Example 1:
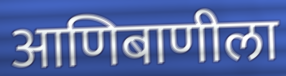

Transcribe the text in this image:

आणिबाणीला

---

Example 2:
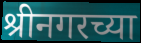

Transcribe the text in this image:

श्रीनगरच्या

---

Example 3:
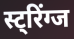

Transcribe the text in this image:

स्ट्रिंग्ज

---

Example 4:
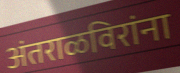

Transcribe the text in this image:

अंतराळविरांना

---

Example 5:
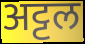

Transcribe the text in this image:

अट्टल